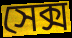
সেক্স